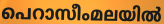
പെറാസീംമലയിൽ